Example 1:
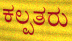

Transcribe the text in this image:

ಕಲ್ಪತರು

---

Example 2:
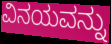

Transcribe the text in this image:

ವಿನಯವನ್ನು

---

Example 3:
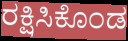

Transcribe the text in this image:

ರಕ್ಷಿಸಿಕೊಂಡ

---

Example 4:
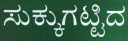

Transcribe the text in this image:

ಸುಕ್ಕುಗಟ್ಟಿದ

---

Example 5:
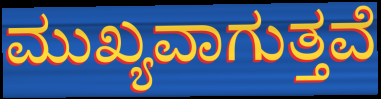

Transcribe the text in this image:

ಮುಖ್ಯವಾಗುತ್ತವೆ